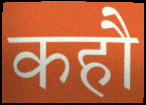
कहौ